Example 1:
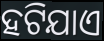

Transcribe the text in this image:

ହଟିଯାଏ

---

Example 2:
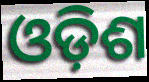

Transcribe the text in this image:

ଓଡ଼ିଶ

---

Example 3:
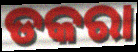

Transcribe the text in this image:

ଡକରା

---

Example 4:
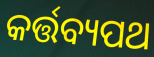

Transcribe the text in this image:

କର୍ତ୍ତବ୍ୟପଥ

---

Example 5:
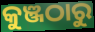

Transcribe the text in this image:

କୁଞ୍ଜଠାରୁ